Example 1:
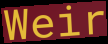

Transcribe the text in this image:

Weir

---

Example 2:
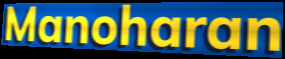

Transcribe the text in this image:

Manoharan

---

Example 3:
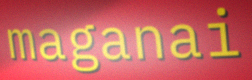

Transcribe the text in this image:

maganai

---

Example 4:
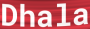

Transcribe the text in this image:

Dhala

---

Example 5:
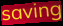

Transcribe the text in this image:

saving